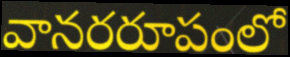
వానరరూపంలో